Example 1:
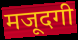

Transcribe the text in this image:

मजूदगी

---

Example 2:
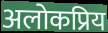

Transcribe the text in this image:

अलोकप्रिय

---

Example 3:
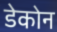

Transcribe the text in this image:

डेकोन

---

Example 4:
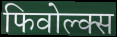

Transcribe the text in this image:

फिवोल्क्स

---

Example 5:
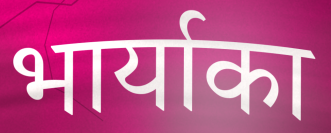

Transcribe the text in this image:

भार्याका